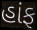
હાંફ